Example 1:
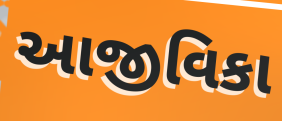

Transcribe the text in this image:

આજીવિકા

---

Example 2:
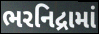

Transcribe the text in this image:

ભરનિદ્રામાં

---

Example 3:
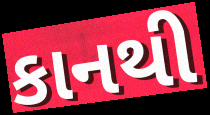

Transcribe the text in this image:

કાનથી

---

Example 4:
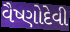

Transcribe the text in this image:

વૈષ્ણોદેવી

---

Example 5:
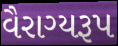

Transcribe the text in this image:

વૈરાગ્યરૂપ